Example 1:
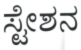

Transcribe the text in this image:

ಸ್ಟೇಶನ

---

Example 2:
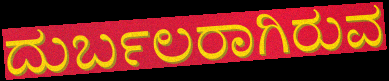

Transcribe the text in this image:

ದುರ್ಬಲರಾಗಿರುವ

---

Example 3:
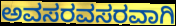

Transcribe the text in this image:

ಅವಸರವಸರವಾಗಿ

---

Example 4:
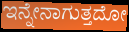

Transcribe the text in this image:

ಇನ್ನೇನಾಗುತ್ತದೋ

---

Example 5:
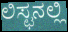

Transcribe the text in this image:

ಲಿಸ್ಟನಲ್ಲಿ